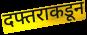
दफ्तराकडून